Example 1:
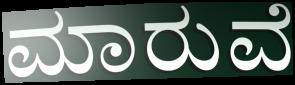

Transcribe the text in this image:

ಮಾರುವೆ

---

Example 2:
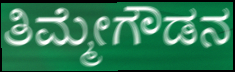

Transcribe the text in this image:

ತಿಮ್ಮೇಗೌಡನ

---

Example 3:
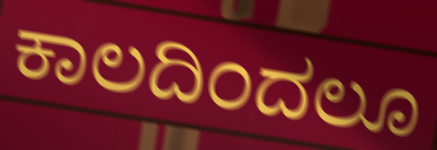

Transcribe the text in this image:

ಕಾಲದಿಂದಲೂ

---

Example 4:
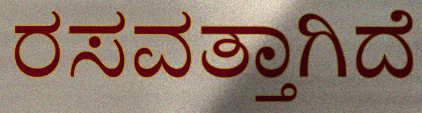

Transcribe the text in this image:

ರಸವತ್ತಾಗಿದೆ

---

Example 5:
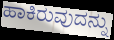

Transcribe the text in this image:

ಹಾಕಿರುವುದನ್ನು